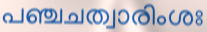
പഞ്ചചത്വാരിംശഃ